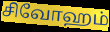
சிவோஹம்